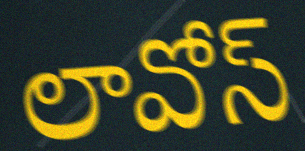
లావోస్